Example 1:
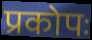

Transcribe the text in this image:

प्रकोपः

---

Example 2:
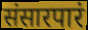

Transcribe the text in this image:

संसारपारं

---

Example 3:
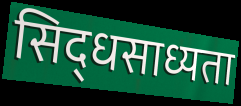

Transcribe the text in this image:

सिद्धसाध्यता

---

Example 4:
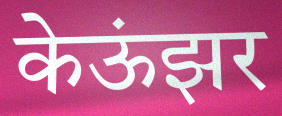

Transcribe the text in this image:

केऊंझर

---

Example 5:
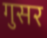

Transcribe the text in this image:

गुसर